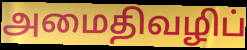
அமைதிவழிப்